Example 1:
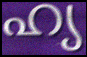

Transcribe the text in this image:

ഹ്യ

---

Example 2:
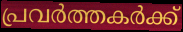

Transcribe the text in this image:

പ്രവർത്തകർക്ക്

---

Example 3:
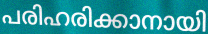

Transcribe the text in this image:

പരിഹരിക്കാനായി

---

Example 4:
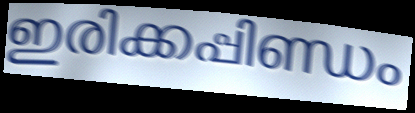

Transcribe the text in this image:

ഇരിക്കപ്പിണ്ഡം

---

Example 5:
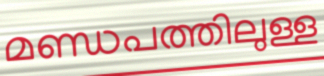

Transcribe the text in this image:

മണ്ഡപത്തിലുള്ള